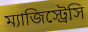
ম্যাজিস্ট্রেসি